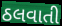
ઠલવાતી